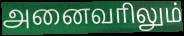
அனைவரிலும்